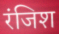
रंजिश